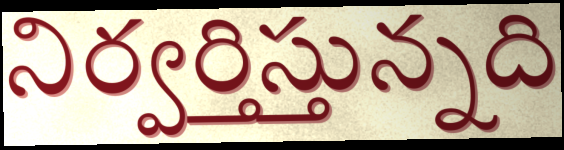
నిర్వర్తిస్తున్నది